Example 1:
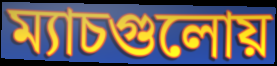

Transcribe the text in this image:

ম্যাচগুলোয়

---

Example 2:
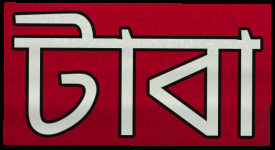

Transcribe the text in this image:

টাবা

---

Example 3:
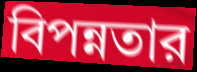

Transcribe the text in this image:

বিপন্নতার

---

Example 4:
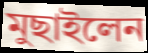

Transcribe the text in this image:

মুছাইলেন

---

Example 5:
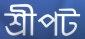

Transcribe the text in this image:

শ্রীপট